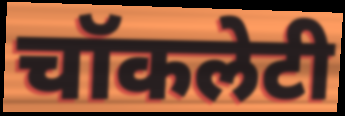
चॉकलेटी